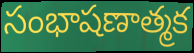
సంభాషణాత్మక